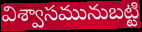
విశ్వాసమునుబట్టి